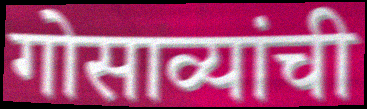
गोसाव्यांची